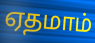
ஏதமாம்